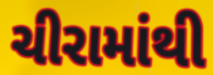
ચીરામાંથી